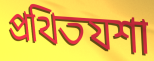
প্রথিতযশা